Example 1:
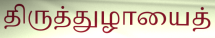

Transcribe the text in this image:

திருத்துழாயைத்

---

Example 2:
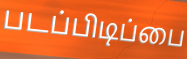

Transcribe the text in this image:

படப்பிடிப்பை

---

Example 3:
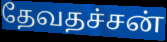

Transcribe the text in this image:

தேவதச்சன்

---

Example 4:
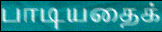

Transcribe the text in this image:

பாடியதைக்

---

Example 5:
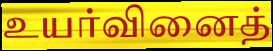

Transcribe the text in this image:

உயர்வினைத்